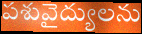
పశువైద్యులను